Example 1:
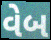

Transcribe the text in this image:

વેબ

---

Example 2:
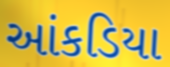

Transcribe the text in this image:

આંકડિયા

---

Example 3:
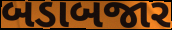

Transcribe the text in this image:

બડાબજાર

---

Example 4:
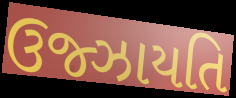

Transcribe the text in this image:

ઉજ્ઝાયતિ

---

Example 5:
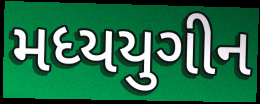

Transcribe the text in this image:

મધ્યયુગીન